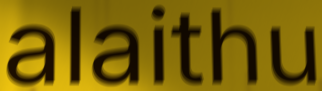
alaithu